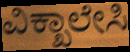
ವಿಕ್ಖಾಲೇಸಿ